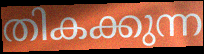
തികക്കുന്ന